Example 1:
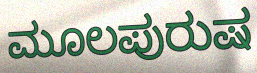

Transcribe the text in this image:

ಮೂಲಪುರುಷ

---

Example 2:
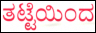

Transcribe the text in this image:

ತಟ್ಟೆಯಿಂದ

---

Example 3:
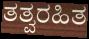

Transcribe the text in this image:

ತತ್ವರಹಿತ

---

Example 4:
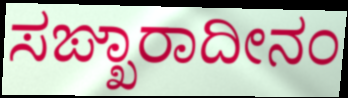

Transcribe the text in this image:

ಸಙ್ಖಾರಾದೀನಂ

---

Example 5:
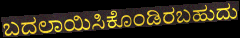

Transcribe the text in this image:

ಬದಲಾಯಿಸಿಕೊಂಡಿರಬಹುದು